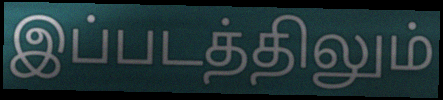
இப்படத்திலும்